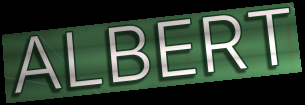
ALBERT